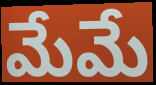
మేమే